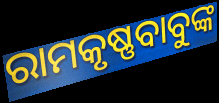
ରାମକୃଷ୍ଣବାବୁଙ୍କ